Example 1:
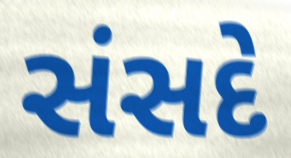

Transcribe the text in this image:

સંસદે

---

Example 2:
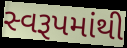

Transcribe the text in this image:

સ્વરૂપમાંથી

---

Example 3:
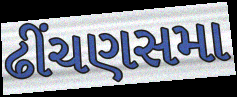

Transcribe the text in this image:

ઢીંચણસમા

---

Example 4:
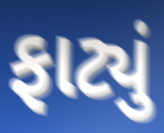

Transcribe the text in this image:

ફાટ્યું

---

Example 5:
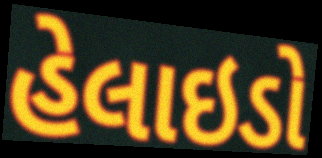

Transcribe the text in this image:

હેલાઇડો